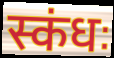
स्कंधः